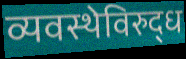
व्यवस्थेविरुद्ध